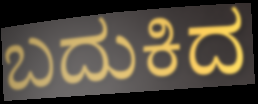
ಬದುಕಿದ